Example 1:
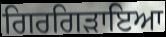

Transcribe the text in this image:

ਗਿਰਗਿੜਾਇਆ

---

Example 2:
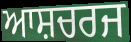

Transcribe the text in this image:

ਆਸ਼ਚਰਜ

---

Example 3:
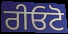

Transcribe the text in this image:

ਰੀਓਟੋ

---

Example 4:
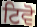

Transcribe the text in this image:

ਟਿਵੋ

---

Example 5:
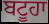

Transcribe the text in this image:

ਬਟੂਹਾ